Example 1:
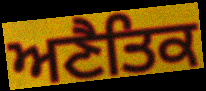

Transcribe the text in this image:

ਅਣੈਤਿਕ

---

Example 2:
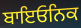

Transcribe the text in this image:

ਬਾਇਓਨਿਕ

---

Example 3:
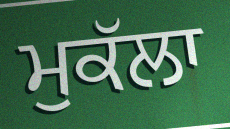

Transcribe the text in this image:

ਮੁਕੱਲਾ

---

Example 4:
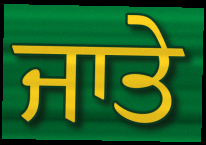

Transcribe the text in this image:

ਜਾਤੇ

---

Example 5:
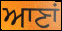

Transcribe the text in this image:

ਆਣਾਂ